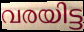
വരയിട്ട